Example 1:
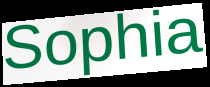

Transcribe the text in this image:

Sophia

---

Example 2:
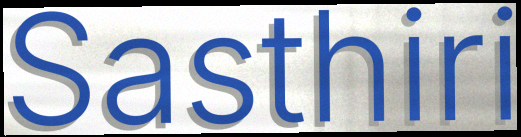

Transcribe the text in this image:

Sasthiri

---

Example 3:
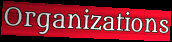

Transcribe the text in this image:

Organizations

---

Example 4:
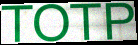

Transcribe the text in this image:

TOTP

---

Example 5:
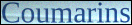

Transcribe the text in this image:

Coumarins